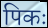
पिकः